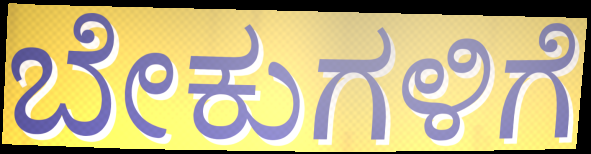
ಬೇಕುಗಳಿಗೆ